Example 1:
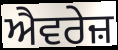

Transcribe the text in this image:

ਐਵਰੇਜ਼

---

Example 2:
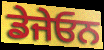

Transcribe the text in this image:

ਡੇਜੇਓਨ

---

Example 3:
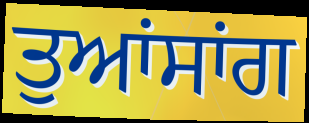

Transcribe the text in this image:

ਤੁਆਂਸਾਂਗ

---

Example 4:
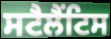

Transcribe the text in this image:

ਸਟੈਲੈਂਟਿਸ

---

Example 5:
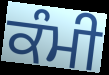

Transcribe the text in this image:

ਕੰਮੀ